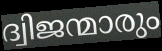
ദ്വിജന്മാരും